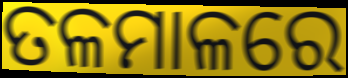
ତଳମାଳରେ